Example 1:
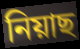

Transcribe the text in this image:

নিয়াছ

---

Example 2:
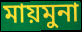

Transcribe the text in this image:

মায়মুনা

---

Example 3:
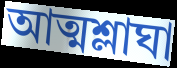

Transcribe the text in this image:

আত্মশ্লাঘা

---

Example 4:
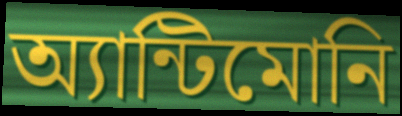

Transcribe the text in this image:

অ্যান্টিমোনি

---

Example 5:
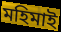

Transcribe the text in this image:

মহিমাই